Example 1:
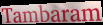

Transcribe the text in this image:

Tambaram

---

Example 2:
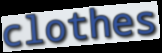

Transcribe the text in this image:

clothes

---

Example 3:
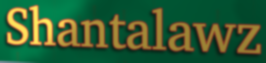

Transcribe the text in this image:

Shantalawz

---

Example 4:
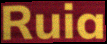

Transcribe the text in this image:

Ruia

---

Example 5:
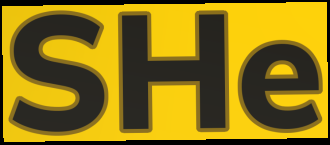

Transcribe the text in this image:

SHe